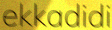
ekkadidi